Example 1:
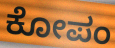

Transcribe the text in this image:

ಕೋಪಂ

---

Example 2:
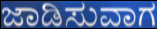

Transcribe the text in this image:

ಜಾಡಿಸುವಾಗ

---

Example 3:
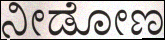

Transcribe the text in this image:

ನೀಡೋಣ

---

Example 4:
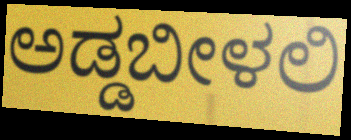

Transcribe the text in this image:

ಅಡ್ಡಬೀಳಲಿ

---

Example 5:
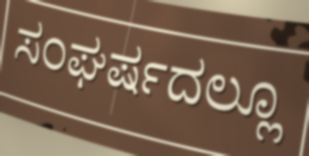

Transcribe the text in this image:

ಸಂಘರ್ಷದಲ್ಲೂ